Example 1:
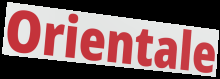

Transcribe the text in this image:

Orientale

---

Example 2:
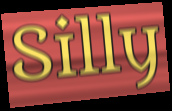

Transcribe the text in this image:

Silly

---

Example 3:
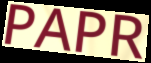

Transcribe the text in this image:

PAPR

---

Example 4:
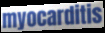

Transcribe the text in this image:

myocarditis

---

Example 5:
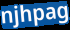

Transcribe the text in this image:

njhpag